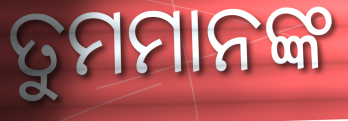
ତୁମମାନଙ୍କ